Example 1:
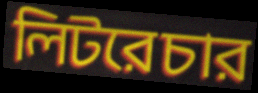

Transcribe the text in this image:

লিটরেচার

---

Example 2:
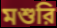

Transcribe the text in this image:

মশুরি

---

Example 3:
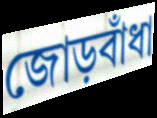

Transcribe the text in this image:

জোড়বাঁধা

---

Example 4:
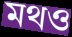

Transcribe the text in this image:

মথও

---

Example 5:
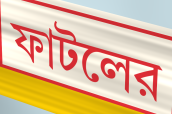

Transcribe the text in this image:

ফাটলের